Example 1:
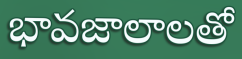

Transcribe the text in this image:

భావజాలాలతో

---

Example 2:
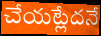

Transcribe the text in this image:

చేయట్లేదనే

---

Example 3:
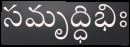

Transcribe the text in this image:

సమృద్ధిభిః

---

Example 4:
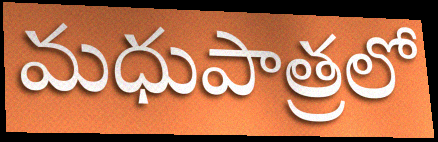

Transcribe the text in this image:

మధుపాత్రలో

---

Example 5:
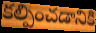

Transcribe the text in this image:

కల్పించడానికి